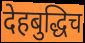
देहबुद्धिच